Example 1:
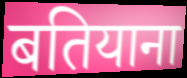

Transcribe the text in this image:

बतियाना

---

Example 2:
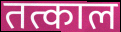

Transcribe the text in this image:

तत्काल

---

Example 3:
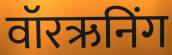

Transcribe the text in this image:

वॉरऋनिंग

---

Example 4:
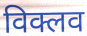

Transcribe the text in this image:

विक्लव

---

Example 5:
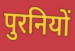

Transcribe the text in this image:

पुरनियों